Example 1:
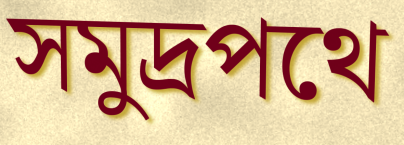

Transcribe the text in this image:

সমুদ্রপথে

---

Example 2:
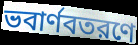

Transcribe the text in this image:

ভবার্ণবতরণে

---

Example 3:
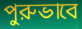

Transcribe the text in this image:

পুরুভাবে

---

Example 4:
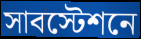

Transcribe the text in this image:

সাবস্টেশনে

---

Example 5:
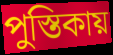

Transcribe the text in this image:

পুস্তিকায়